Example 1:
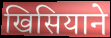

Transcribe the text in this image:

खिसियाने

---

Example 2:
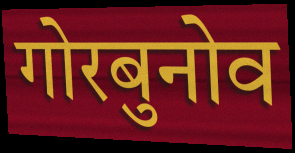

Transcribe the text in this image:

गोरबुनोव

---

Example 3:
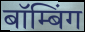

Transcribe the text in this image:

बॉम्बिंग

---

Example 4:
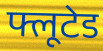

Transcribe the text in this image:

फ्लूटेड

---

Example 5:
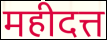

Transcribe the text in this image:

महीदत्त